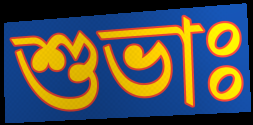
শুভাঃ